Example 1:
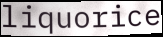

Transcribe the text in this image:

liquorice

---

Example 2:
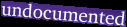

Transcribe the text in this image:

undocumented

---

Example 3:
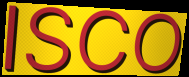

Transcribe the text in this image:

ISCO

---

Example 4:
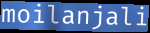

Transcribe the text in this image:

moilanjali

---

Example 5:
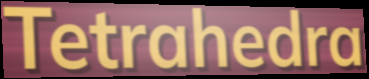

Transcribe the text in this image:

Tetrahedra